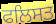
ਫਲਿਸਤ